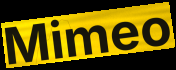
Mimeo